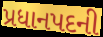
પ્રધાનપદની